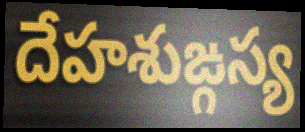
దేహశుఙ్గస్య